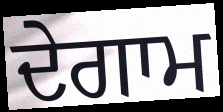
ਦੇਗਾਮ